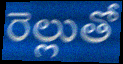
రెల్లుతో